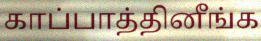
காப்பாத்தினீங்க